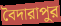
বৈদারাপুর